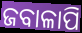
ଜବାଳାପି